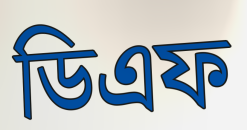
ডিএফ